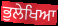
ਭੁਲੇਖਿਆ